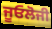
ਜੂਓਲੋਜੀ